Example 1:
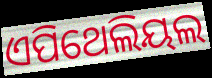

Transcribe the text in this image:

ଏପିଥେଲିୟଲ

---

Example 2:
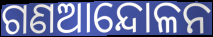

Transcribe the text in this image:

ଗଣଆନ୍ଦୋଳନ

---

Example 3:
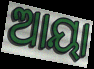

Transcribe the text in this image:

ଆୟା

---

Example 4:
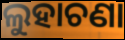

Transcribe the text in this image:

ଲୁହାଚଣା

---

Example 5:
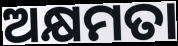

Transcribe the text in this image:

ଅକ୍ଷମତା